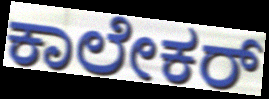
ಕಾಲೇಕರ್